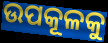
ଉପକୂଳକୁ